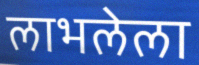
लाभलेला